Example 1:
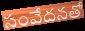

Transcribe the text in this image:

సంవేదనతో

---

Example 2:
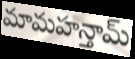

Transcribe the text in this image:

మామహన్తామ్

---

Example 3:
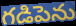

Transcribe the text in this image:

గడిపెను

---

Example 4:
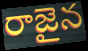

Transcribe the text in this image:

రాజైన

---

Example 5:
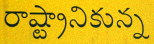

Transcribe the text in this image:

రాష్ట్రానికున్న